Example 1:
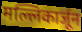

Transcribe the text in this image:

मल्लिकार्जून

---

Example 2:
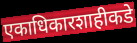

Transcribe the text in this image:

एकाधिकारशाहीकडे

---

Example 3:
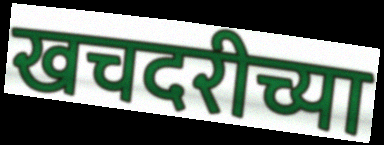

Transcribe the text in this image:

खचदरीच्या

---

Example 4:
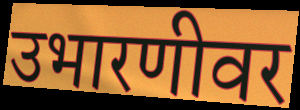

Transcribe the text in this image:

उभारणीवर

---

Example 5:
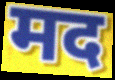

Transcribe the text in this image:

मद